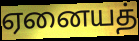
ஏனையத்